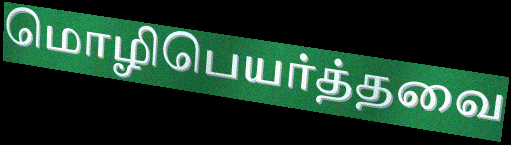
மொழிபெயர்த்தவை